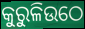
କୁରୁଳିଉଠେ